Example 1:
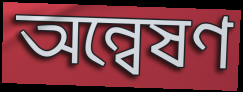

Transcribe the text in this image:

অন্বেষণ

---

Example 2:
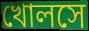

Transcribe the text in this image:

খোলসে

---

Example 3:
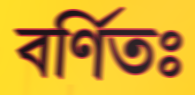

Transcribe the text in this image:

বর্ণিতঃ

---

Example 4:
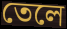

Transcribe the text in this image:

তেলে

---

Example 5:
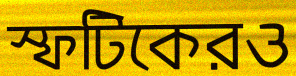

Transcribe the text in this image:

স্ফটিকেরও